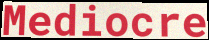
Mediocre